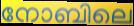
നോബിലെ